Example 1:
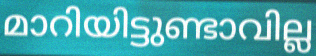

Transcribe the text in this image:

മാറിയിട്ടുണ്ടാവില്ല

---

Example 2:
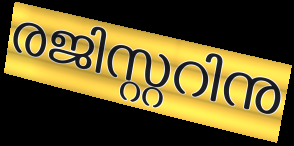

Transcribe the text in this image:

രജിസ്റ്ററിനു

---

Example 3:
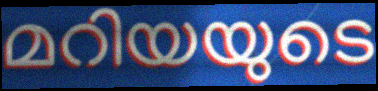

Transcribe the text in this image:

മറിയയുടെ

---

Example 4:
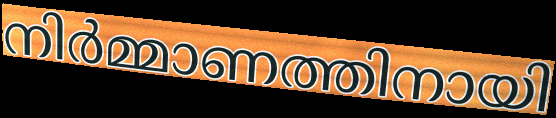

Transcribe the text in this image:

നിർമ്മാണത്തിനായി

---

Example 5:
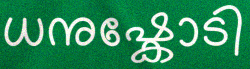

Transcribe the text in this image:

ധനുഷ്കോടി